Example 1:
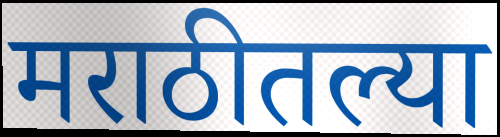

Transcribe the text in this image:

मराठीतल्या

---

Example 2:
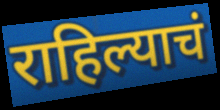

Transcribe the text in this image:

राहिल्याचं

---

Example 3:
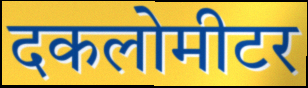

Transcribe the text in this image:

दकलोमीटर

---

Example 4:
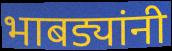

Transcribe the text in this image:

भाबड्यांनी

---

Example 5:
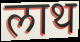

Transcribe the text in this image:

लाथ